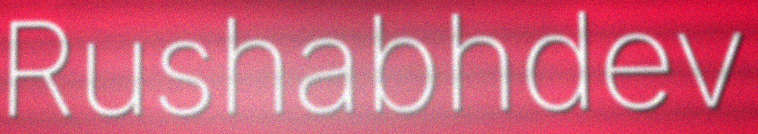
Rushabhdev